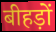
बीहड़ों